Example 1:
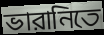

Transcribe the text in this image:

ভারানিতে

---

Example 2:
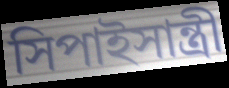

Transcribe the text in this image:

সিপাইসান্ত্রী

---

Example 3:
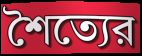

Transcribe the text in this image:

শৈত্যের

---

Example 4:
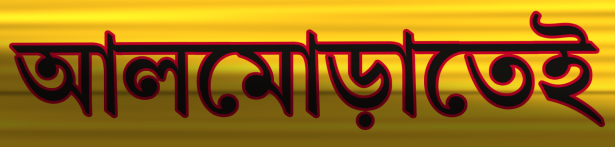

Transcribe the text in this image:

আলমোড়াতেই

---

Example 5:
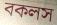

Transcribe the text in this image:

বকলস